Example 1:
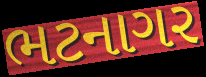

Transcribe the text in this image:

ભટનાગર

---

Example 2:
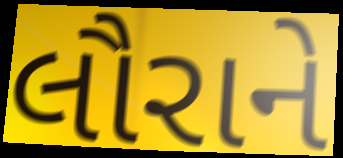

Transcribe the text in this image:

લૌરાને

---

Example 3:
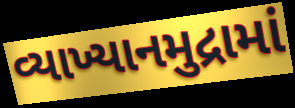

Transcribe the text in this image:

વ્યાખ્યાનમુદ્રામાં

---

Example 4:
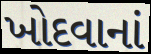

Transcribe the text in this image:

ખોદવાનાં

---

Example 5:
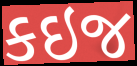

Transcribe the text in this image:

કઇજ